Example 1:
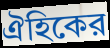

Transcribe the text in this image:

ঐহিকের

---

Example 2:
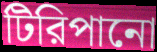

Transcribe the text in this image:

টিরিপানো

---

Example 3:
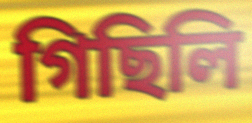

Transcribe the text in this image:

গিছিলি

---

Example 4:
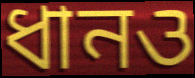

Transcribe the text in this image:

ধানও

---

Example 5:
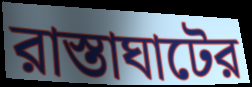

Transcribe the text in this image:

রাস্তাঘাটের